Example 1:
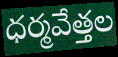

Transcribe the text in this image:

ధర్మవేత్తల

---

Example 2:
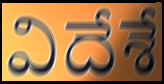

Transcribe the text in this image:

విదేశే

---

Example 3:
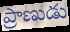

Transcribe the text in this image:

ప్రాణుడు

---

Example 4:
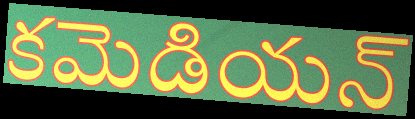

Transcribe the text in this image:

కమెడియన్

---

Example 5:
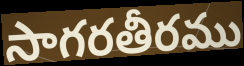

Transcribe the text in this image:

సాగరతీరము